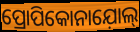
ପ୍ରୋପିକୋନାଯ଼ୋଲ୍